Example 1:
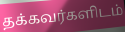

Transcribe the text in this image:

தக்கவர்களிடம்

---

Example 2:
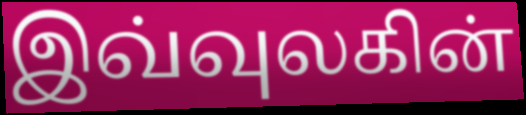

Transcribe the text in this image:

இவ்வுலகின்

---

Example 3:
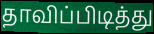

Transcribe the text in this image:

தாவிப்பிடித்து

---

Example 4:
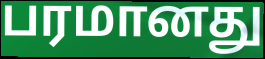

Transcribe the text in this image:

பரமானது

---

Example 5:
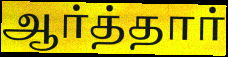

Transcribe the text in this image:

ஆர்த்தார்